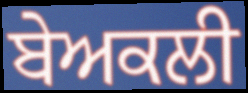
ਬੇਅਕਲੀ